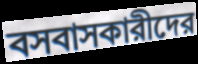
বসবাসকারীদের